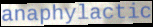
anaphylactic